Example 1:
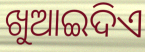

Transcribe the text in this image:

ଖୁଆଇଦିଏ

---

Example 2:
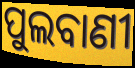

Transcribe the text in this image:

ପୁଲବାଣୀ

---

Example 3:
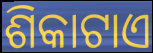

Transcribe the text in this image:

ଶିକାଟାଏ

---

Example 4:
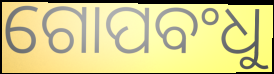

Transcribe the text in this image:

ଗୋପବଂଧୁ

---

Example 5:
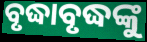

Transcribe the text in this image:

ବୃଦ୍ଧାବୃଦ୍ଧଙ୍କୁ